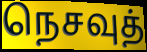
நெசவுத்